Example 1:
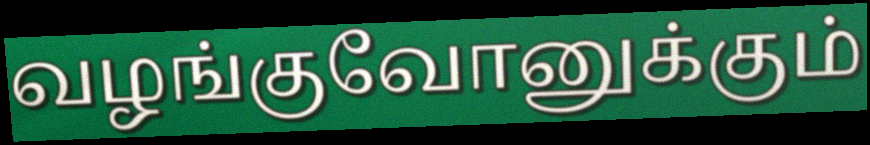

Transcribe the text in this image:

வழங்குவோனுக்கும்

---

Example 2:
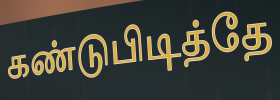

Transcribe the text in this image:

கண்டுபிடித்தே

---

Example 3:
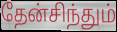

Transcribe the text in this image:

தேன்சிந்தும்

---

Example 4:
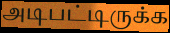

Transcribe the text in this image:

அடிபட்டிருக்க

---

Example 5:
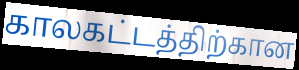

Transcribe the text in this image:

காலகட்டத்திற்கான